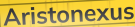
Aristonexus